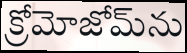
క్రోమోజోమ్‌ను